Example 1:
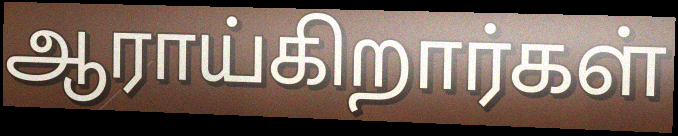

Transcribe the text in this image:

ஆராய்கிறார்கள்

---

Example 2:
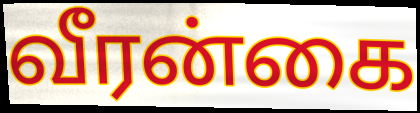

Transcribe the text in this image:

வீரன்கை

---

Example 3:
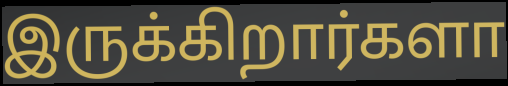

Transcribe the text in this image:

இருக்கிறார்களா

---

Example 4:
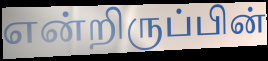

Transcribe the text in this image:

என்றிருப்பின்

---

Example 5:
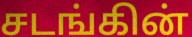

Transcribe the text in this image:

சடங்கின்